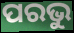
ପରଭୁ